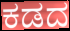
ಕಡದ